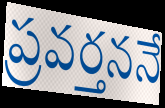
ప్రవర్తననే